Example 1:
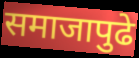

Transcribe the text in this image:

समाजापुढे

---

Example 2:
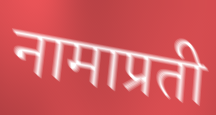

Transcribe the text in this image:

नामाप्रती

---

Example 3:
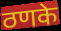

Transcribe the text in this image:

ठणके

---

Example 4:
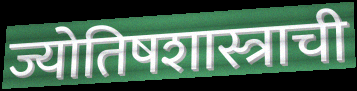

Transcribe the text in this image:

ज्योतिषशास्त्राची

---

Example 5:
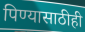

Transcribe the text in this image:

पिण्यासाठीही